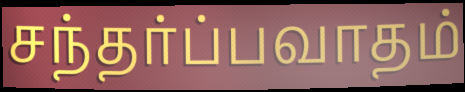
சந்தர்ப்பவாதம்